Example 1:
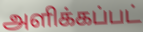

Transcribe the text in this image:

அளிக்கப்பட்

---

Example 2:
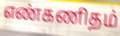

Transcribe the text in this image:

எண்கணிதம்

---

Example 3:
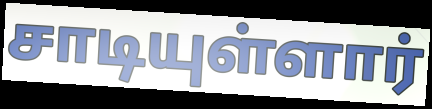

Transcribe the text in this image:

சாடியுள்ளார்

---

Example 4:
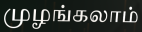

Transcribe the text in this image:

முழங்கலாம்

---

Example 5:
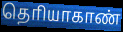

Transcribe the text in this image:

தெரியாகாண்